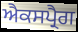
ਐਕਸਪ੍ਰੈਗ